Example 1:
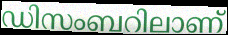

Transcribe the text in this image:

ഡിസംബറിലാണ്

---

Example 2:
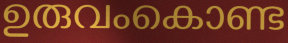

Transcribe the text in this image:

ഉരുവംകൊണ്ട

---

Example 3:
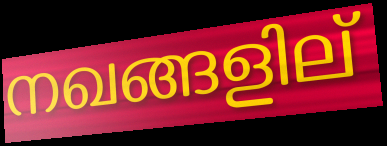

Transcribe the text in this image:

നഖങ്ങളില്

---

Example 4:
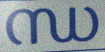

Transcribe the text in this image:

ന്ധ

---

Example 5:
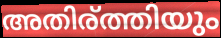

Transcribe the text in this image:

അതിര്ത്തിയും